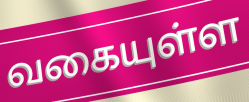
வகையுள்ள